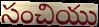
సంచియు